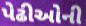
પેઢીઓની